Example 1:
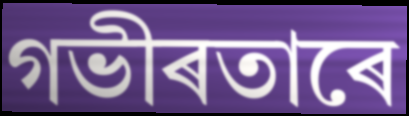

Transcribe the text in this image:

গভীৰতাৰে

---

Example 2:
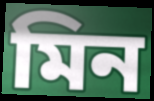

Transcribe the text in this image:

মিন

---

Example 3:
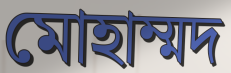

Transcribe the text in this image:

মোহাম্মদ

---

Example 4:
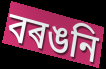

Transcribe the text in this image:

বৰঙনি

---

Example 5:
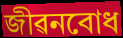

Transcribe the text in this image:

জীৱনবোধ